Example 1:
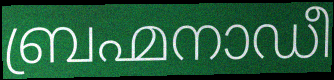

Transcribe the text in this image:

ബ്രഹ്മനാഡീ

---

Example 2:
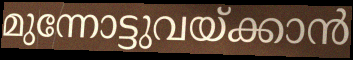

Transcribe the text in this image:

മുന്നോട്ടുവയ്ക്കാൻ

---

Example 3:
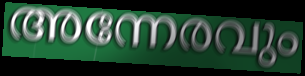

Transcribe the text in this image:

അന്നേരവും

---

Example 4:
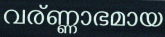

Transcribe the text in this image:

വര്ണ്ണാഭമായ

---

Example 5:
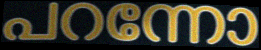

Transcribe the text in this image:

പറന്നോ